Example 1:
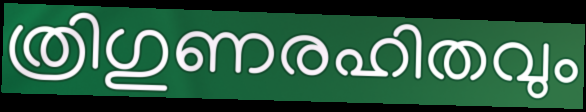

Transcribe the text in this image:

ത്രിഗുണരഹിതവും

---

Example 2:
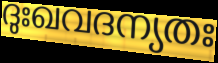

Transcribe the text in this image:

ദുഃഖവദന്യതഃ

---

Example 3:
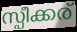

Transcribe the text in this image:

സ്പീക്കര്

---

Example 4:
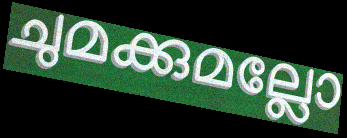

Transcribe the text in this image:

ചുമക്കുമല്ലോ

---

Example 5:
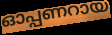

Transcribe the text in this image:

ഓപ്പണറായ